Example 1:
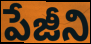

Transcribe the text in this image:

పేజీని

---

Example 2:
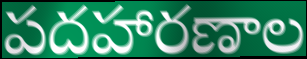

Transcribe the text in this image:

పదహారణాల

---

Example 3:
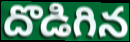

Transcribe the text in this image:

దొడిగిన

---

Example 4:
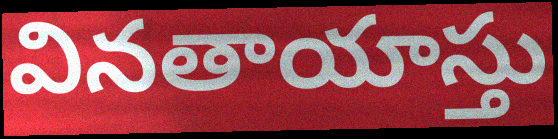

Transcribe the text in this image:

వినతాయాస్తు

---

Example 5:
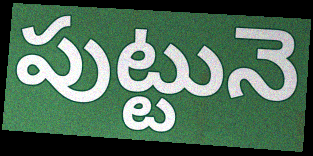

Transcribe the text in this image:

పుట్టునె